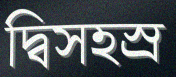
দ্বিসহস্র